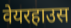
वेयरहाउस